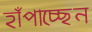
হাঁপাচ্ছেন